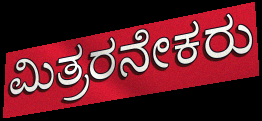
ಮಿತ್ರರನೇಕರು